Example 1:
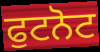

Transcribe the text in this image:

ਫੁਟਨੋਟ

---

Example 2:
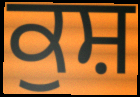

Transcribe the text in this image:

ਕੁਸ਼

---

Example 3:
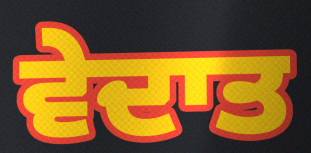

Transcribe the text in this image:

ਵੇਦਾਤ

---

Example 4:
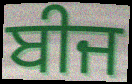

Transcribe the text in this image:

ਬੀਜ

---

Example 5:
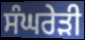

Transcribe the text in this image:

ਸੰਘਰੇੜੀ